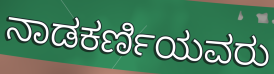
ನಾಡಕರ್ಣಿಯವರು